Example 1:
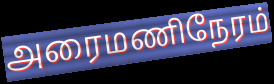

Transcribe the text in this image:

அரைமணிநேரம்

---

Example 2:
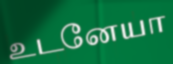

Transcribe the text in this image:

உடனேயா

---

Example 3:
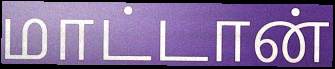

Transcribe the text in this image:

மாட்டான்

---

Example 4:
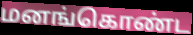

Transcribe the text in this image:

மனங்கொண்ட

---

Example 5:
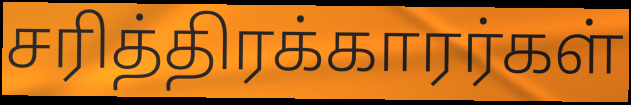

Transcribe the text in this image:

சரித்திரக்காரர்கள்